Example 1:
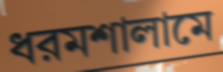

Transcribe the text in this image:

ধরমশালামে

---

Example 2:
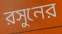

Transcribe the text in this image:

রসুনের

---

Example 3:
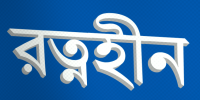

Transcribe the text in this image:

রত্নহীন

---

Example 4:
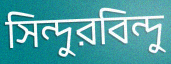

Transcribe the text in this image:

সিন্দুরবিন্দু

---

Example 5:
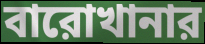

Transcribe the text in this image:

বারোখানার